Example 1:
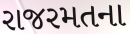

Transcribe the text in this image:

રાજરમતના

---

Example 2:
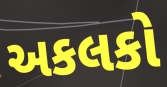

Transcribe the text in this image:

અકલકો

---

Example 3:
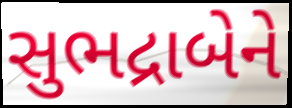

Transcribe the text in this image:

સુભદ્રાબેને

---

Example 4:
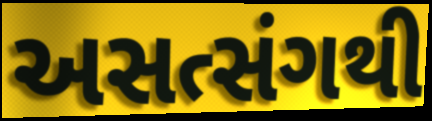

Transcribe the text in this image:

અસત્સંગથી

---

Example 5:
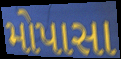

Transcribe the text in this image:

મોપાસા